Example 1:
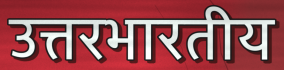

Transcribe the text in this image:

उत्तरभारतीय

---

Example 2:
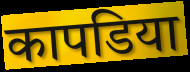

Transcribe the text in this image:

कापडिया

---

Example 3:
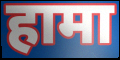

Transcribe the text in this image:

हामा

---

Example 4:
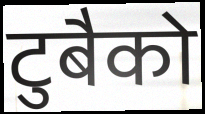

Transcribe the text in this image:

टुबैको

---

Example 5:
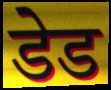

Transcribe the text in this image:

डेड